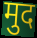
मुद